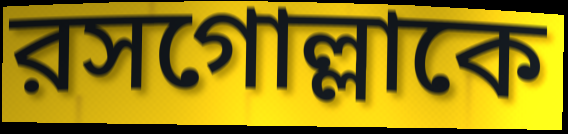
রসগোল্লাকে